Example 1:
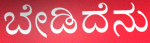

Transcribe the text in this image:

ಬೇಡಿದೆನು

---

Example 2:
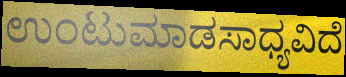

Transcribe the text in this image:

ಉಂಟುಮಾಡಸಾಧ್ಯವಿದೆ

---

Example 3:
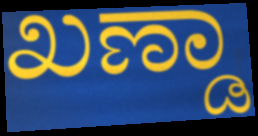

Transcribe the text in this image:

ಖಣ್ಡಾ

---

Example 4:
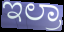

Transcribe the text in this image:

ಇಲ್ರಾ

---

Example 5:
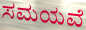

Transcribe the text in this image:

ಸಮಯವೆ